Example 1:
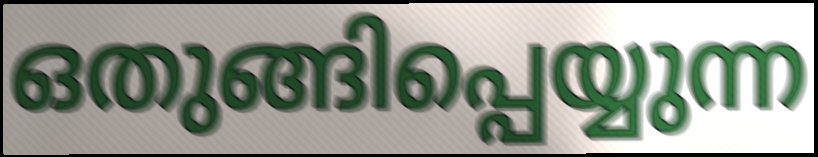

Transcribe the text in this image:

ഒതുങ്ങിപ്പെയ്യുന്ന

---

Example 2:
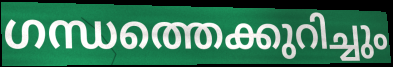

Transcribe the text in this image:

ഗന്ധത്തെക്കുറിച്ചും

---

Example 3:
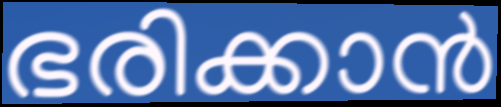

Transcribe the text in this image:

ഭരിക്കാൻ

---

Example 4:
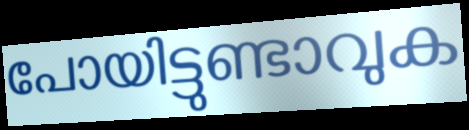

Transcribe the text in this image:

പോയിട്ടുണ്ടാവുക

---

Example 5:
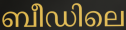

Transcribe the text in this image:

ബീഡിലെ